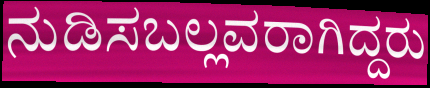
ನುಡಿಸಬಲ್ಲವರಾಗಿದ್ದರು